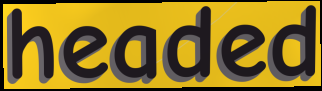
headed